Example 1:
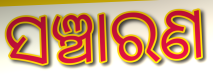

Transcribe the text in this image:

ସଞ୍ଚାରଣ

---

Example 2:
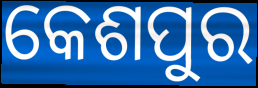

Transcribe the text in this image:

କେଶପୁର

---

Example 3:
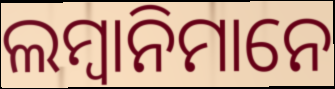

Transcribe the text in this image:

ଲମ୍ବାନିମାନେ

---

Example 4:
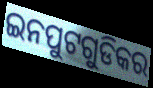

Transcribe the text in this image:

ଇନପୁଟଗୁଡିକର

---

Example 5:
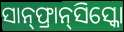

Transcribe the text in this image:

ସାନ୍‌ଫ୍ରାନ୍‌ସିସ୍କୋ